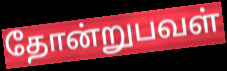
தோன்றுபவள்